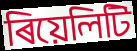
ৰিয়েলিটি